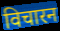
विचारन